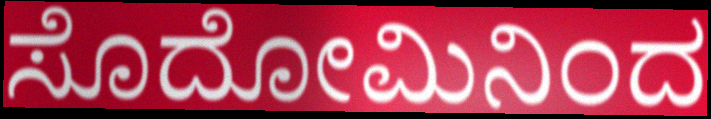
ಸೊದೋಮಿನಿಂದ